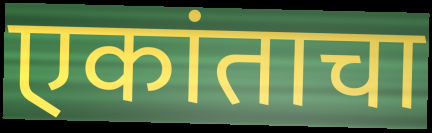
एकांताचा